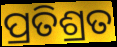
ପ୍ରତିଶ୍ରତ